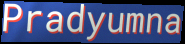
Pradyumna